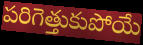
పరిగెత్తుకుపోయే